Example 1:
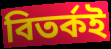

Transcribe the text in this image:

বিতৰ্কই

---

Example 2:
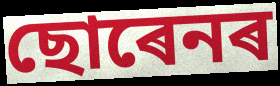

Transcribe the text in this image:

ছোৰেনৰ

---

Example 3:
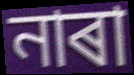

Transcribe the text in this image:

নাৰা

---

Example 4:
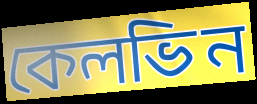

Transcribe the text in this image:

কেলভিন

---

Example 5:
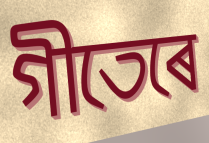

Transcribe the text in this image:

গীতেৰে